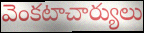
వెంకటాచార్యులు